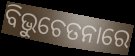
ବିଭୁଚେତନାରେ